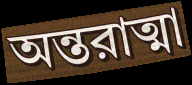
অন্তরাত্মা